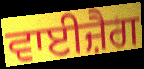
ਵਾਈਜ਼ੈਗ